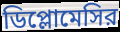
ডিপ্লোমেসির